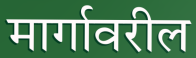
मार्गावरील